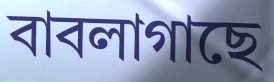
বাবলাগাছে